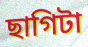
ছাগিটা